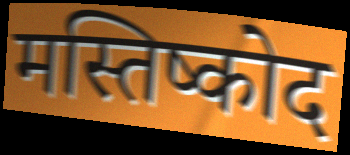
मस्तिष्कोद